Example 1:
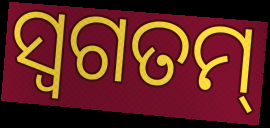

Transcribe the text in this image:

ସ୍ୱଗତମ୍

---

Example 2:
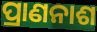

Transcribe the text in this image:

ପ୍ରାଣନାଶ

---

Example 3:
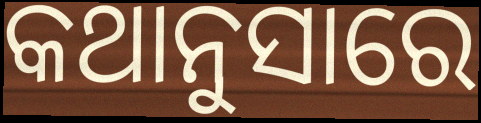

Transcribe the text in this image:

କଥାନୁସାରେ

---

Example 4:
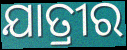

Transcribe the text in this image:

ଯାତ୍ରୀର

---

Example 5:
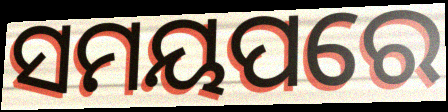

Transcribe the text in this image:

ସମୟପରେ